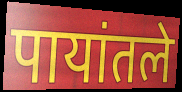
पायांतले